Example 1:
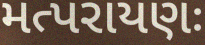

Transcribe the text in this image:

મત્પરાયણઃ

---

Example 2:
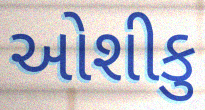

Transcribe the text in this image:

ઓશીકુ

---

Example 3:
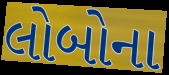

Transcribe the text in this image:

લોબોના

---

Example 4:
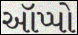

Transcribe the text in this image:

ઑપ્પો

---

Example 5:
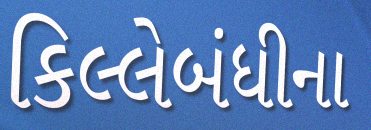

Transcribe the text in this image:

કિલ્લેબંધીના